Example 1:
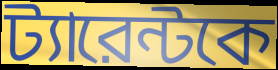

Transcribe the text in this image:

ট্যারেন্টকে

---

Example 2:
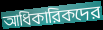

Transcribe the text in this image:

আধিকারিকদের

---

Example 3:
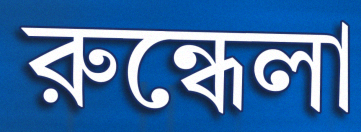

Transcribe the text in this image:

রুন্ধেলা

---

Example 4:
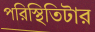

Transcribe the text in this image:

পরিস্থিতিটার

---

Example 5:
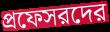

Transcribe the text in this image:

প্রফেসরদের